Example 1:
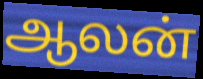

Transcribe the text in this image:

ஆலன்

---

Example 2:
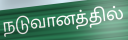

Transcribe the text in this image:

நடுவானத்தில்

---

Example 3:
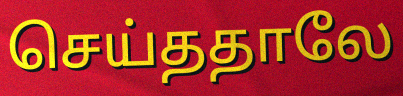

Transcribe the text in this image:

செய்ததாலே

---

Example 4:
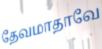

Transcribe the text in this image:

தேவமாதாவே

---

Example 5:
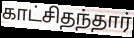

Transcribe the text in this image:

காட்சிதந்தார்